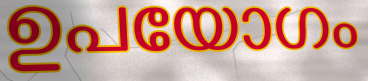
ഉപയോഗം